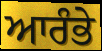
ਆਰੰਭੇ